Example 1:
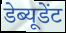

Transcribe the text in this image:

डेब्यूडेंट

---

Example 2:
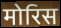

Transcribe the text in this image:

मोरिस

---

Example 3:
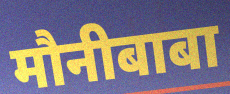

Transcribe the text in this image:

मौनीबाबा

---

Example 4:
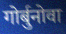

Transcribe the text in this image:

गोर्बुनोवा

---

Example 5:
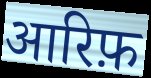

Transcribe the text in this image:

आरिफ़